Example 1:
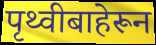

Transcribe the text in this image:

पृथ्वीबाहेरून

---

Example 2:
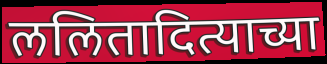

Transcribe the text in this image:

ललितादित्याच्या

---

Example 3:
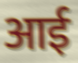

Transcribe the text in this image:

आई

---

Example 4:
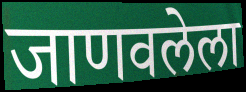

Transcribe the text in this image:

जाणवलेला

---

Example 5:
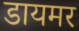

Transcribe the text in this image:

डायमर